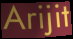
Arijit